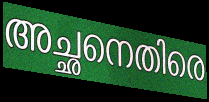
അച്ഛനെതിരെ